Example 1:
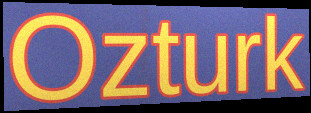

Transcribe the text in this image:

Ozturk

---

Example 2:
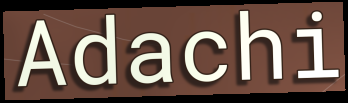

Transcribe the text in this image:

Adachi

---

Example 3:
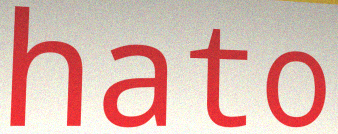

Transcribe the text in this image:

hato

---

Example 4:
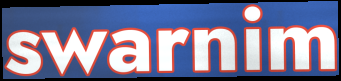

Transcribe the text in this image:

swarnim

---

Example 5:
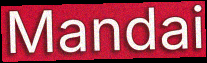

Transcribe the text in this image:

Mandai